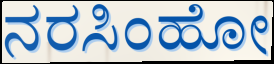
ನರಸಿಂಹೋ